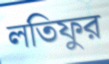
লতিফুর